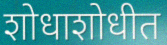
शोधाशोधीत